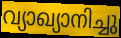
വ്യാഖ്യാനിച്ചു